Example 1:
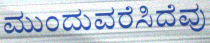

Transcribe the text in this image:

ಮುಂದುವರೆಸಿದೆವು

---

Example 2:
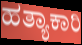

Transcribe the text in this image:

ಹತ್ಯಾಕಾರಿ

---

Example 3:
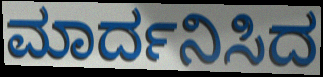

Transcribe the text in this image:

ಮಾರ್ದನಿಸಿದ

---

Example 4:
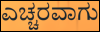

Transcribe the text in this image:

ಎಚ್ಚರವಾಗು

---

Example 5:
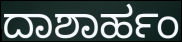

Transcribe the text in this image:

ದಾಶಾರ್ಹಂ